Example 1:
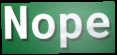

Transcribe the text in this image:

Nope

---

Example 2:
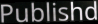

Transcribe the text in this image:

Publishd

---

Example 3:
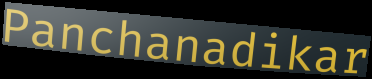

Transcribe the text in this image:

Panchanadikar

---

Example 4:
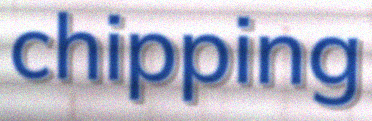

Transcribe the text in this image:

chipping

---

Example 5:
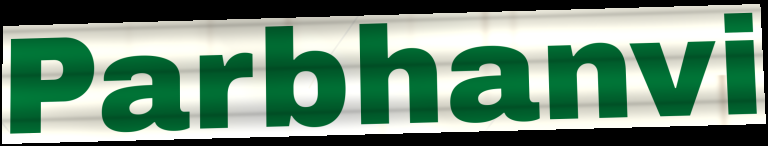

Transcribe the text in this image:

Parbhanvi